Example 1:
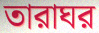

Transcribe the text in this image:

তারাঘর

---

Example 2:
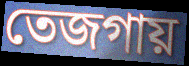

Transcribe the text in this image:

তেজগায়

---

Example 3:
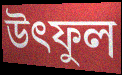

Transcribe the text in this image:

উৎফুল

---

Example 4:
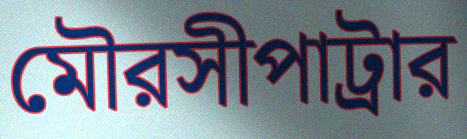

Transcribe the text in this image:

মৌরসীপাট্রার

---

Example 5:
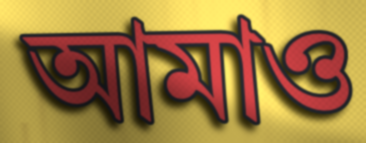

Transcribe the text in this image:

আমাও